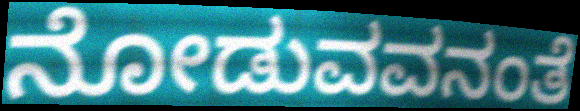
ನೋಡುವವನಂತೆ